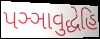
પઞ્ઞાવુદ્ધેહિ